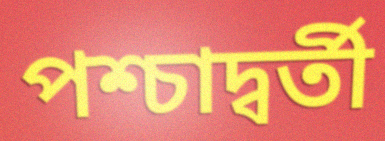
পশ্চাদ্বর্তী